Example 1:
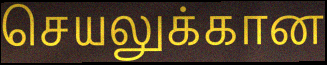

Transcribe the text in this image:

செயலுக்கான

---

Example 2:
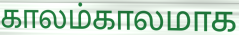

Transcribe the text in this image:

காலம்காலமாக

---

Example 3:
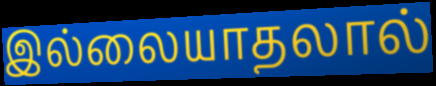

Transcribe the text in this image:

இல்லையாதலால்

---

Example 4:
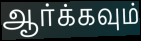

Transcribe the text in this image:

ஆர்க்கவும்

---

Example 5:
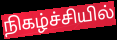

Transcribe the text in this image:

நிகழ்ச்சியில்